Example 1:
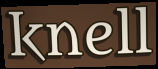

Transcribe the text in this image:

knell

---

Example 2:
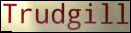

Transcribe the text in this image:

Trudgill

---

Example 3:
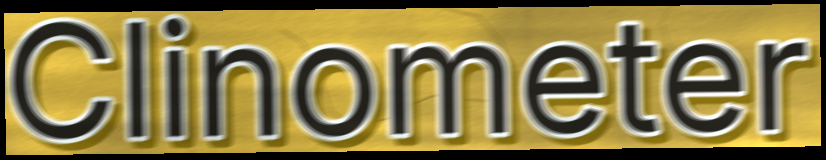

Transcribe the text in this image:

Clinometer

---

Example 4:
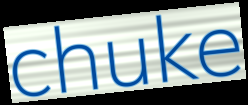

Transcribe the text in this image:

chuke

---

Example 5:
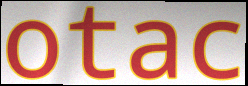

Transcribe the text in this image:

otac